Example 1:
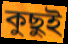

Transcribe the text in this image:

কুছুই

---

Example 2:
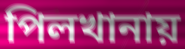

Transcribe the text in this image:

পিলখানায়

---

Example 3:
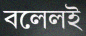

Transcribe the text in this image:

বলেলই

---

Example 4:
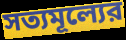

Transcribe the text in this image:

সত্যমূল্যের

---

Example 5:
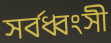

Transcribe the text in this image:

সর্বধ্বংসী